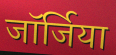
जॉर्जिया